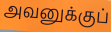
அவனுக்குப்